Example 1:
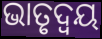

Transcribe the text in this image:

ଭାତୃଦ୍ବୟ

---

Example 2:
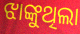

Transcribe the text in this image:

ଝାଙ୍କୁଥିଲା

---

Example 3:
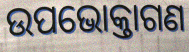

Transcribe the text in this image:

ଉପଭୋକ୍ତାଗଣ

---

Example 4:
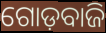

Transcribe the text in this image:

ଗୋଡ଼ବାଜି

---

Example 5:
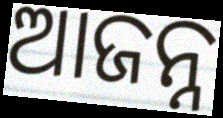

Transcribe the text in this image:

ଆଜନ୍ନ